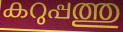
കറുപ്പത്തു